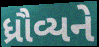
ધ્રૌવ્યને